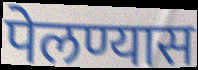
पेलण्यास